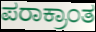
ಪರಾಕ್ರಾಂತ